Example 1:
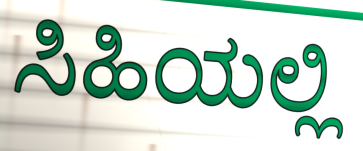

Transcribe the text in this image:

ಸಿಹಿಯಲ್ಲಿ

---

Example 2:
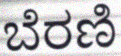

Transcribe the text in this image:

ಬೆರಣಿ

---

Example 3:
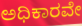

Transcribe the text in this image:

ಅಧಿಕಾರವೇ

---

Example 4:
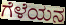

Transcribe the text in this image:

ಗೆಳೆಯನ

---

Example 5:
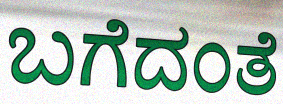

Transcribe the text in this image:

ಬಗೆದಂತೆ